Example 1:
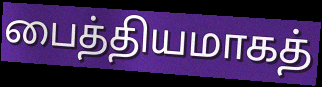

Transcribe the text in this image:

பைத்தியமாகத்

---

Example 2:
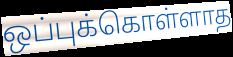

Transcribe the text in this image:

ஒப்புக்கொள்ளாத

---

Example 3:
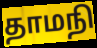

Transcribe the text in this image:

தாமநி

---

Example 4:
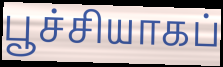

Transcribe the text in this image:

பூச்சியாகப்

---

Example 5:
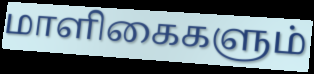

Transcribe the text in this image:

மாளிகைகளும்